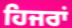
ਹਿਜਰਾਂ